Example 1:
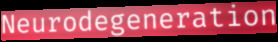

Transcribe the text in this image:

Neurodegeneration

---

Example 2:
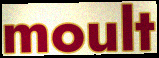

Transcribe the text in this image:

moult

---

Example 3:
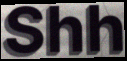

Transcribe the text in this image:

Shh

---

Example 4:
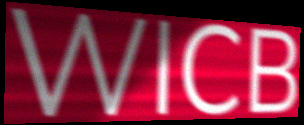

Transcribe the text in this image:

WICB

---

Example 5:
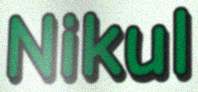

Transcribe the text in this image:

Nikul